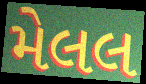
મેલલ